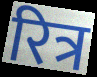
रित्र